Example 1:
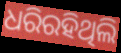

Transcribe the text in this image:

ଧରିରହିଥିଲି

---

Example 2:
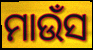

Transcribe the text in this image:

ମାଉଁସ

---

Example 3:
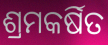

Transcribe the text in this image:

ଶ୍ରମକର୍ଷିତ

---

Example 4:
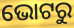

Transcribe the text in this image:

ଭୋଟରୁ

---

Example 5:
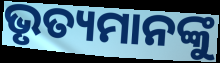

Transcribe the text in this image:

ଭୃତ୍ୟମାନଙ୍କୁ